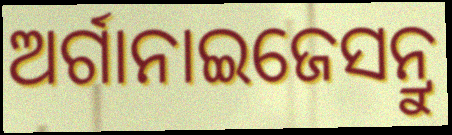
ଅର୍ଗାନାଇଜେସନ୍ରୁ